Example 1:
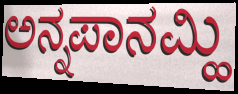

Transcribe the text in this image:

ಅನ್ನಪಾನಮ್ಹಿ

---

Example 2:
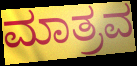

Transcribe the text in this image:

ಮಾತ್ರವ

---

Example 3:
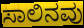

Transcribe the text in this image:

ಸಾಲಿನವು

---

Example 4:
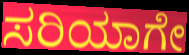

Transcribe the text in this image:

ಸರಿಯಾಗೇ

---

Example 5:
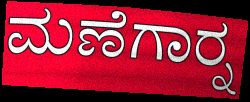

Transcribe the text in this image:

ಮಣೆಗಾರ್‍ನ